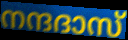
നന്ദദാസ്